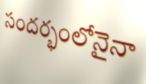
సందర్భంలోనైనా